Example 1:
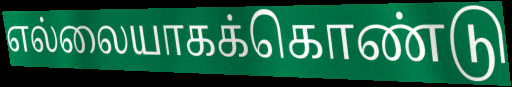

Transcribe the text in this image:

எல்லையாகக்கொண்டு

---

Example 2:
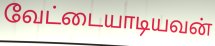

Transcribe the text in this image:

வேட்டையாடியவன்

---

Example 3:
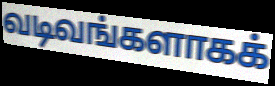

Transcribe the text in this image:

வடிவங்களாகக்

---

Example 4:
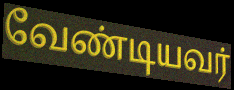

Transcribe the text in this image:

வேண்டியவர்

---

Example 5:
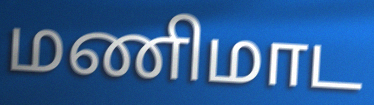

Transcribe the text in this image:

மணிமாட